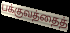
பக்குவத்தைத்